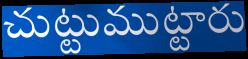
చుట్టుముట్టారు